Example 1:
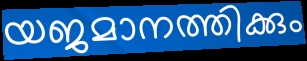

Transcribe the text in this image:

യജമാനത്തിക്കും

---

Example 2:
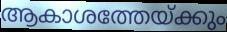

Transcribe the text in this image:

ആകാശത്തേയ്ക്കും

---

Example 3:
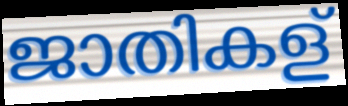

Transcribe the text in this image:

ജാതികള്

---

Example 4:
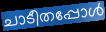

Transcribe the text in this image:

ചാടീതപ്പോൾ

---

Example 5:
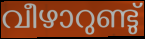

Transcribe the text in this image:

വീഴാറുണ്ടു്